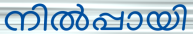
നിൽപ്പായി